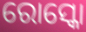
ରୋସ୍କୋ